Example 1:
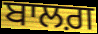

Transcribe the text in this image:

ਬਾਲਗ਼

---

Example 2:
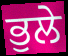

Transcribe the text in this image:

ਭੁਲੇ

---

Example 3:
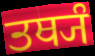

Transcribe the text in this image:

ਤਥ੍ਯੰ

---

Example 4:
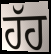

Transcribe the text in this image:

ਹੱਹ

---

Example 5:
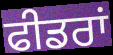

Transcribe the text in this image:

ਫੀਡਰਾਂ